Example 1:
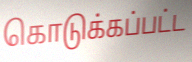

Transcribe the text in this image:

கொடுக்கப்பட்ட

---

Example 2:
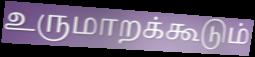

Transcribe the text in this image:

உருமாறக்கூடும்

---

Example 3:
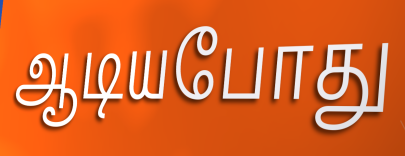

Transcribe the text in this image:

ஆடியபோது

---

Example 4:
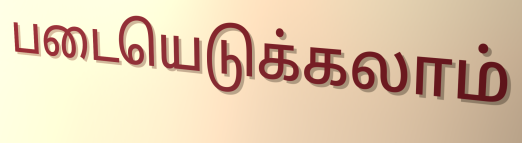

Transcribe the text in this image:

படையெடுக்கலாம்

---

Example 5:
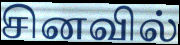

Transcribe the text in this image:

சினவில்